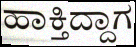
ಹಾಕ್ತಿದ್ದಾಗ